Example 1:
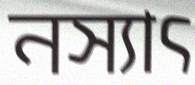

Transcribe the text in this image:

নস্যাৎ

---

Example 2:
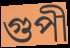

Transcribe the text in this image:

গুপী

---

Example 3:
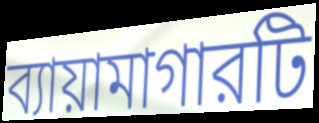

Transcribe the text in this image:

ব্যায়ামাগারটি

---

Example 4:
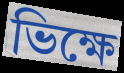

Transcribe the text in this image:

ভিক্ষে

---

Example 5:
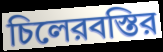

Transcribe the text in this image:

চিলেরবস্তির